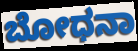
ಬೋಧನಾ